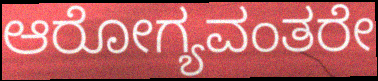
ಆರೋಗ್ಯವಂತರೇ